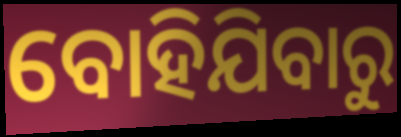
ବୋହିଯିବାରୁ